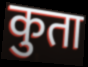
कुता